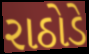
રાઠોડે